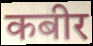
कबीर